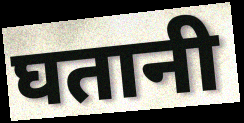
घतानी